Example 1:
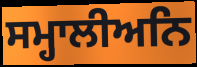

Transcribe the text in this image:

ਸਮ੍ਹਾਲੀਅਨਿ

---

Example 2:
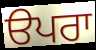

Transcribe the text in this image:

ੳਪਰਾ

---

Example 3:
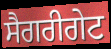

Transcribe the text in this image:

ਸੈਗਰੀਗੇਟ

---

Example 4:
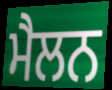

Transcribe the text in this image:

ਮੈਲਨ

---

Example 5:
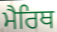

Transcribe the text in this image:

ਮੈਰਿਥ